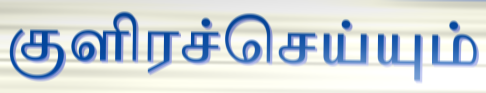
குளிரச்செய்யும்